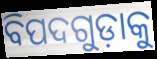
ବିପଦଗୁଡ଼ାକୁ